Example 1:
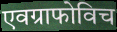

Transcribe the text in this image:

एवग्राफोविच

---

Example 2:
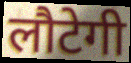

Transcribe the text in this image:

लौटेगी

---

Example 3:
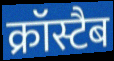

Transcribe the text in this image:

क्रॉस्टैब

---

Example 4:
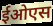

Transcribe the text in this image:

ईओएस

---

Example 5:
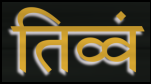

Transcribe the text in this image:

तिव्वं